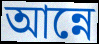
আন্নে